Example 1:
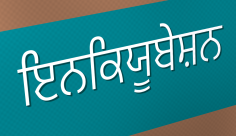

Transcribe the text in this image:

ਇਨਕਿਯੂਬੇਸ਼ਨ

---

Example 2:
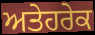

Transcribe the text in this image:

ਅਤੇਹਰੇਕ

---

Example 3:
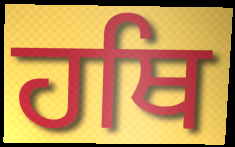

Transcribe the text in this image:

ਹਥਿ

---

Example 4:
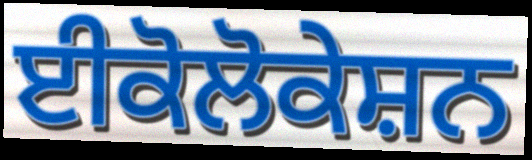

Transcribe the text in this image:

ਈਕੋਲੋਕੇਸ਼ਨ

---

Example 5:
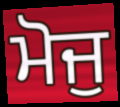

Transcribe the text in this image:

ਮੋਜੁ